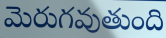
మెరుగవుతుంది